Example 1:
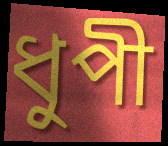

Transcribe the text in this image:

ধুপী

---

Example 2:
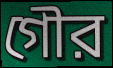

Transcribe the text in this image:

গৌর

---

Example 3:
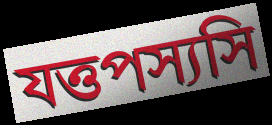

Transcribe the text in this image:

যত্তপস্যসি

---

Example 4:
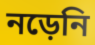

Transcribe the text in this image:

নড়েনি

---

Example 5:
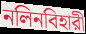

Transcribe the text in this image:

নলিনবিহারী